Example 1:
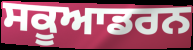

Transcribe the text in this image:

ਸਕੂਆਡਰਨ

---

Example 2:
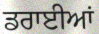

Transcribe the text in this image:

ਡਰਾਈਆਂ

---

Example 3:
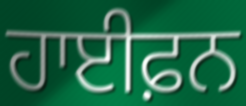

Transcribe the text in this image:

ਹਾਈਫ਼ਨ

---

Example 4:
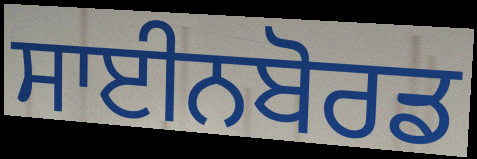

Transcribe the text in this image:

ਸਾਈਨਬੋਰਡ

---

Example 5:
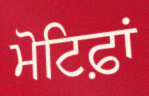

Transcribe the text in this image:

ਮੋਟਿਫ਼ਾਂ